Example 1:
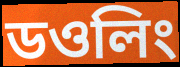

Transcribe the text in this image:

ডওলিং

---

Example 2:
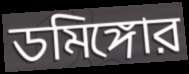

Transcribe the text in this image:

ডমিঙ্গোর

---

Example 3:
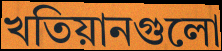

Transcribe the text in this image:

খতিয়ানগুলো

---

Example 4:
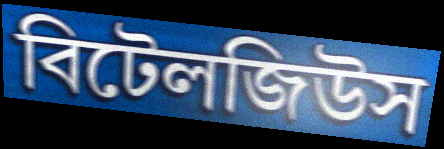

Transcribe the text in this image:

বিটেলজিউস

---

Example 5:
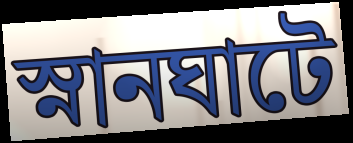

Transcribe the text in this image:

স্নানঘাটে